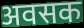
अवसक